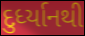
દુર્ધ્યાનથી